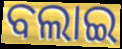
ବଲାଇ